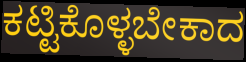
ಕಟ್ಟಿಕೊಳ್ಳಬೇಕಾದ